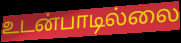
உடன்பாடில்லை